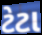
ટેટા